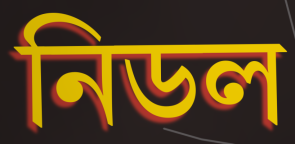
নিডল